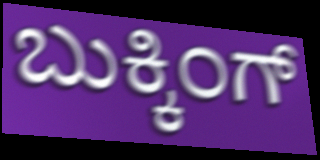
ಬುಕ್ಕಿಂಗ್